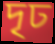
দৃঢ